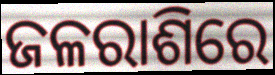
ଜଳରାଶିରେ